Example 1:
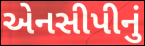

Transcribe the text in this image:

એનસીપીનું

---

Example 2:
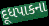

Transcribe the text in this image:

દૂધપાકના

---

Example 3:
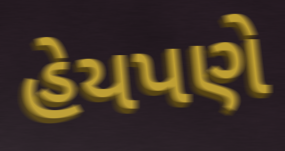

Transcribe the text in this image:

હેયપણે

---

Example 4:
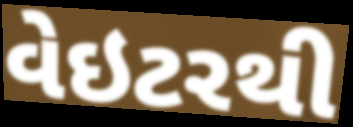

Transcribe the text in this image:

વેઇટરથી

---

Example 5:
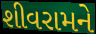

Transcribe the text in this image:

શીવરામને